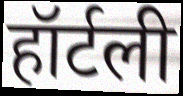
हॉर्टली